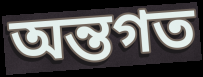
অন্তগত